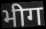
भीग